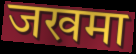
जखमा